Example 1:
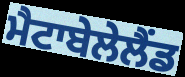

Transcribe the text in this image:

ਮੈਟਾਬੇਲੇਲੈਂਡ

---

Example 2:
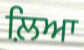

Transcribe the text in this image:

ਲ਼ਿਆ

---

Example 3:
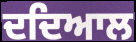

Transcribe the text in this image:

ਦਦਿਆਲ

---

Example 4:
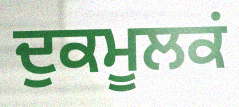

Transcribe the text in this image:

ਦੁਕਮੂਲਕਂ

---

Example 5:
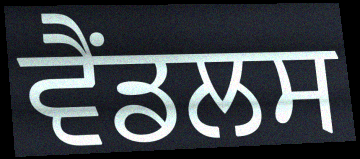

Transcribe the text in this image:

ਵੈਂਡਲਸ